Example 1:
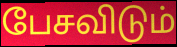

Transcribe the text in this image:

பேசவிடும்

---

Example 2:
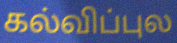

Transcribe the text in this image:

கல்விப்புல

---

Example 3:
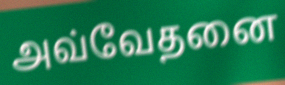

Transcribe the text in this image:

அவ்வேதனை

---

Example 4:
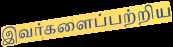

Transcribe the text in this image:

இவர்களைப்பற்றிய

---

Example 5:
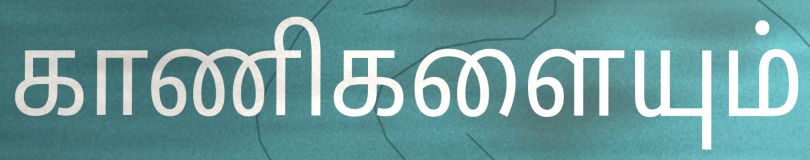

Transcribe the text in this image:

காணிகளையும்